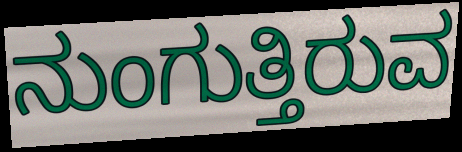
ನುಂಗುತ್ತಿರುವ